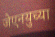
जेएनयुच्या